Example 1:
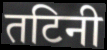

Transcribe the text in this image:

तटिनी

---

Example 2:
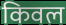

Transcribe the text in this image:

किवल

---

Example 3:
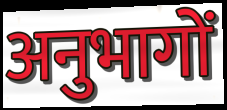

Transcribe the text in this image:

अनुभागों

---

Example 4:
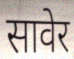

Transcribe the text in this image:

सावेर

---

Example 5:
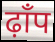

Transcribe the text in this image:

ढ़ाँप